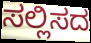
ಸಲ್ಲಿಸದ